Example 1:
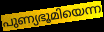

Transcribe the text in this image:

പുണ്യഭൂമിയെന്ന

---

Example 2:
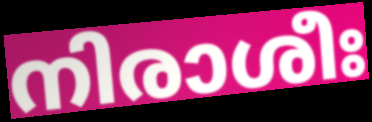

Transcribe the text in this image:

നിരാശീഃ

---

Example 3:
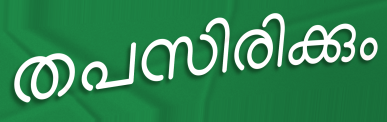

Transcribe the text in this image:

തപസിരിക്കും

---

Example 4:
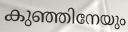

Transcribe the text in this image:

കുഞ്ഞിനേയും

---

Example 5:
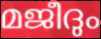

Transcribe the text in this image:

മജീദും